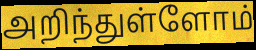
அறிந்துள்ளோம்